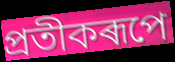
প্ৰতীকৰূপে